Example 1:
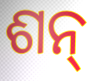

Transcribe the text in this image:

ଶନ୍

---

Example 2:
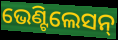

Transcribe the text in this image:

ଭେଣ୍ଟିଲେସନ୍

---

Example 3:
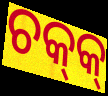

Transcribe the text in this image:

ଚକ୍‌କ୍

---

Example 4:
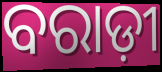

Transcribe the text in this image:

ବରାଡ଼ୀ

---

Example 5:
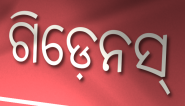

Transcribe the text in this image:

ଗିଡ଼େନସ୍